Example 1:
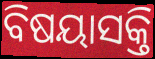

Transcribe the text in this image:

ବିଷୟାସକ୍ତି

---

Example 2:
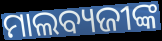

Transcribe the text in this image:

ମାଲବ୍ୟଜୀଙ୍କ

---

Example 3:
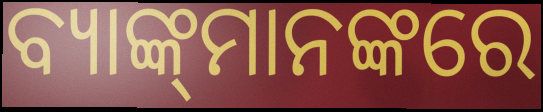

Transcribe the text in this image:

ବ୍ୟାଙ୍କ୍‌ମାନଙ୍କରେ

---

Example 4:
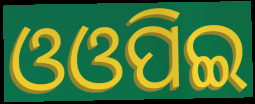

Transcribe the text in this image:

ଓଓପିଇ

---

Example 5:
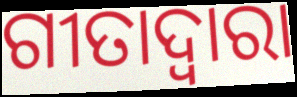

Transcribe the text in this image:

ଗୀତାଦ୍ଵାରା